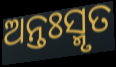
ଅନ୍ତଃସ୍ମୃତ